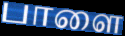
பாளை